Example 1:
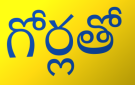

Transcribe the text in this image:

గోర్లతో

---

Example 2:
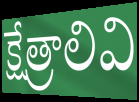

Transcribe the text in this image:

క్షేత్రాలివి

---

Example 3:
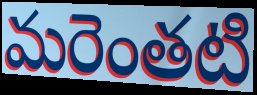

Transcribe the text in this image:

మరెంతటి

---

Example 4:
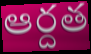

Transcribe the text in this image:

ఆర్దత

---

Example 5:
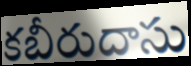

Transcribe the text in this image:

కబీరుదాసు